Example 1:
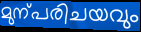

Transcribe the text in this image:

മുന്പരിചയവും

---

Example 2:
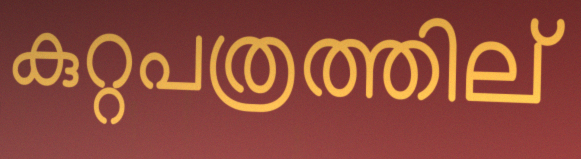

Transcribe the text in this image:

കുറ്റപത്രത്തില്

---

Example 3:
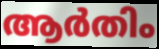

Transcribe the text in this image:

ആർതിം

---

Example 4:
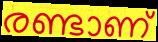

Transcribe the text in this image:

രണ്ടാണ്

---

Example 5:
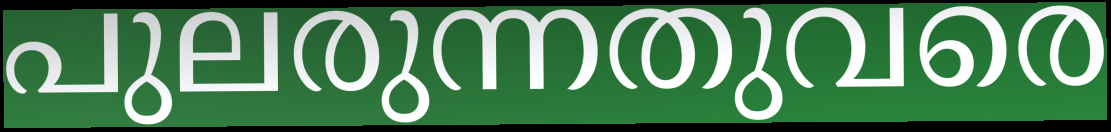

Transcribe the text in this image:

പുലരുന്നതുവരെ